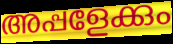
അപ്പളേക്കും